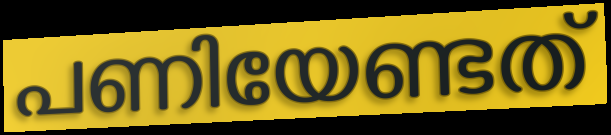
പണിയേണ്ടത്